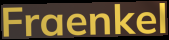
Fraenkel